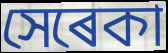
সেৰেকা